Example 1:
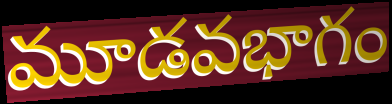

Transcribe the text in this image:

మూడవభాగం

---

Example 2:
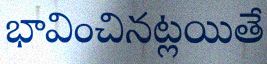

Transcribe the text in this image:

భావించినట్లయితే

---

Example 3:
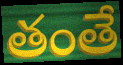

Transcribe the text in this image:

తంతే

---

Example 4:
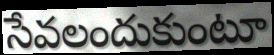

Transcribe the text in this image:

సేవలందుకుంటూ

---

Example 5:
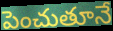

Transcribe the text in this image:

పెంచుతూనే